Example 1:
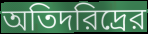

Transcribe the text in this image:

অতিদরিদ্রের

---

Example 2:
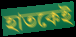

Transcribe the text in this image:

হাতকেই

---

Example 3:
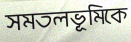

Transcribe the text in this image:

সমতলভূমিকে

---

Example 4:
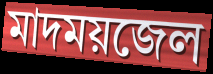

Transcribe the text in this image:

মাদময়জেল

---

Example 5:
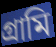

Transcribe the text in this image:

গ্রামি